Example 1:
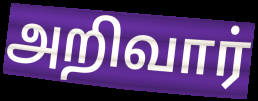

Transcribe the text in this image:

அறிவார்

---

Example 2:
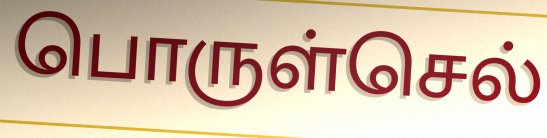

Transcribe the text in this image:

பொருள்செல்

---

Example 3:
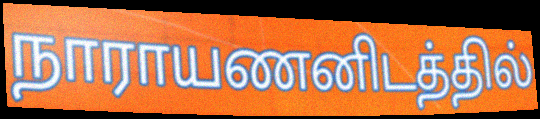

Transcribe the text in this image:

நாராயணனிடத்தில்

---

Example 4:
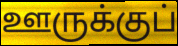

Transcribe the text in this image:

ஊருக்குப்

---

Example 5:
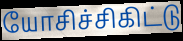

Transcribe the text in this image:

யோசிச்சிகிட்டு